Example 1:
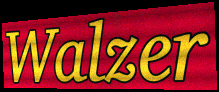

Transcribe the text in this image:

Walzer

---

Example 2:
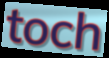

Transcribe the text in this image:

toch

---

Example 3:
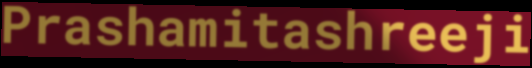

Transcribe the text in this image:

Prashamitashreeji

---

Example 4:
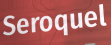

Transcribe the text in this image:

Seroquel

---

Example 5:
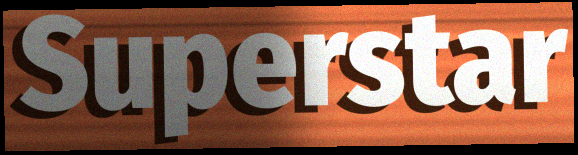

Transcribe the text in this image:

Superstar